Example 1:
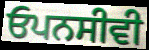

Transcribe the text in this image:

ਓਪਨਸੀਵੀ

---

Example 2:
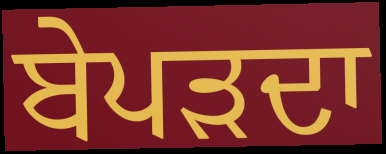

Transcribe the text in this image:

ਬੇਪੜਦਾ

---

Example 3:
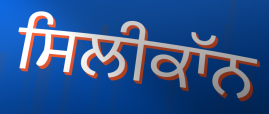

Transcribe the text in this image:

ਸਿਲੀਕਾੱਨ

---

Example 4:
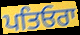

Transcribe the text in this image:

ਪਤਿਓਰਾ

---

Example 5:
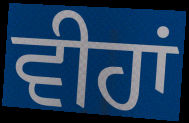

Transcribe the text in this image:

ਵੀਹਾਂ